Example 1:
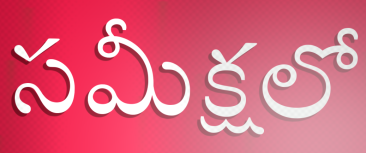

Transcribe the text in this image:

సమీక్షలో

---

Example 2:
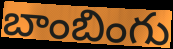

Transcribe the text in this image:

బాంబింగు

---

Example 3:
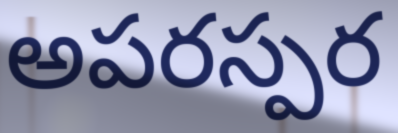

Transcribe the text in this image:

అపరస్పర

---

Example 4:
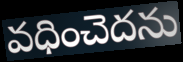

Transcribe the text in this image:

వధించెదను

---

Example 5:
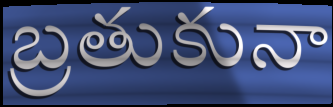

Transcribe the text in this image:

బ్రతుకునా